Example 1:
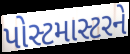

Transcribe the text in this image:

પોસ્ટમાસ્ટરને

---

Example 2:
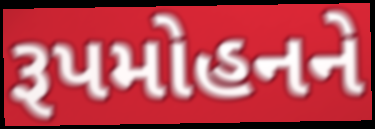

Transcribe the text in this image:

રૂપમોહનને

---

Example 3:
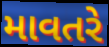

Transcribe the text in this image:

માવતરે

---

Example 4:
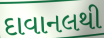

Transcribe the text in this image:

દાવાનલથી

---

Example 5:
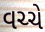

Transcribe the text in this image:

વચ્ચે